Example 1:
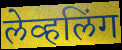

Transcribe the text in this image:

लेव्हलिंग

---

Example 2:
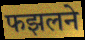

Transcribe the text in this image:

फझलने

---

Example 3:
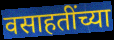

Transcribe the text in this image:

वसाहतींच्या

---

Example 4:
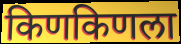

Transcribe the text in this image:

किणकिणला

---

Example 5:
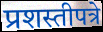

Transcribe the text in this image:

प्रशस्तीपत्रे